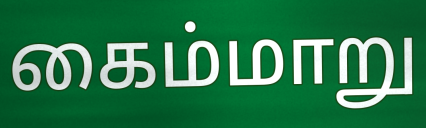
கைம்மாறு